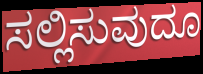
ಸಲ್ಲಿಸುವುದೂ